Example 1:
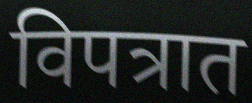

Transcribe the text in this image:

विपत्रात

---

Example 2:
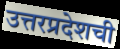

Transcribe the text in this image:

उत्तरप्रदेशची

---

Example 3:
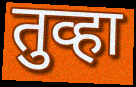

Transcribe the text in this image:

तुव्हा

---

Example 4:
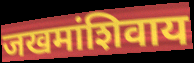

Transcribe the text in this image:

जखमांशिवाय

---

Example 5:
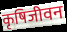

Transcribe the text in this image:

कृषिजीवन